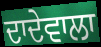
ਦਾਦੇਵਾਲਾ